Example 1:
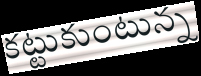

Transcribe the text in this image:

కట్టుకుంటున్న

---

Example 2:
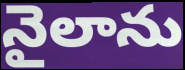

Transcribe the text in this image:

నైలాను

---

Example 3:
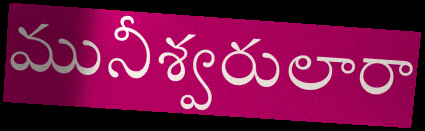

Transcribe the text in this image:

మునీశ్వరులారా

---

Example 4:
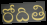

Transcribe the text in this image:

రోదితి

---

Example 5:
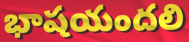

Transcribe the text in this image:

భాషయందలి